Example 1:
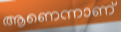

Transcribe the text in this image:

ആണെന്നാണ്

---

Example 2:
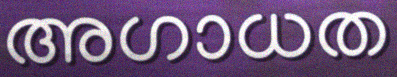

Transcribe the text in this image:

അഗാധത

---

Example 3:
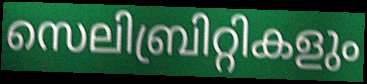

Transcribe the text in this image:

സെലിബ്രിറ്റികളും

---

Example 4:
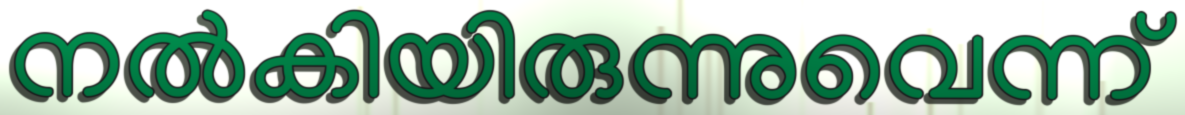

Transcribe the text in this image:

നൽകിയിരുന്നുവെന്ന്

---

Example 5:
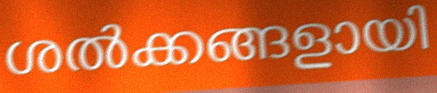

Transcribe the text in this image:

ശൽക്കങ്ങളായി